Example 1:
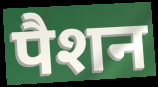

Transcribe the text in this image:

पैशन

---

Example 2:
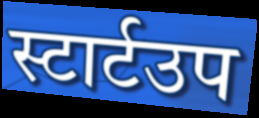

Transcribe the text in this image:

स्टार्टउप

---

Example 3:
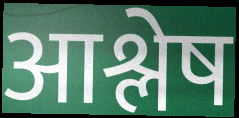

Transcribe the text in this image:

आश्लेष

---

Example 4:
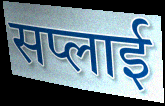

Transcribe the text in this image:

सप्‍लाई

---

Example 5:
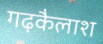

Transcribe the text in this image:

गढ़कैलाश